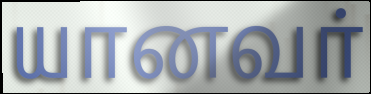
யானவர்